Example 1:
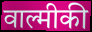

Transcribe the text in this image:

वाल्मीकी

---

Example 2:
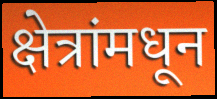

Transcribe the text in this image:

क्षेत्रांमधून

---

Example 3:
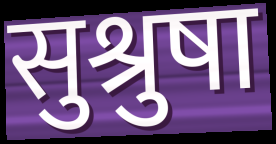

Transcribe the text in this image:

सुश्रुषा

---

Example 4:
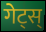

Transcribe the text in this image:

गेट्स्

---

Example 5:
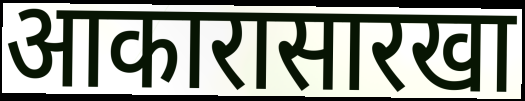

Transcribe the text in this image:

आकारासारखा